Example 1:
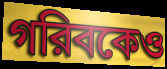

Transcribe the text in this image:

গরিবকেও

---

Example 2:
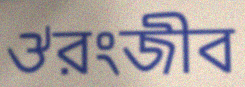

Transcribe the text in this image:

ঔরংজীব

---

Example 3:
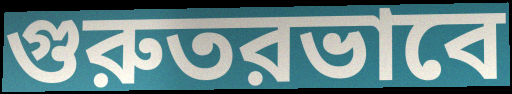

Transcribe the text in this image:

গুরুতরভাবে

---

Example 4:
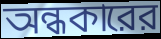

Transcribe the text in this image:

অন্ধকারের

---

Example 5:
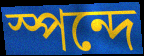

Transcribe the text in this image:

স্পন্দে